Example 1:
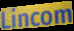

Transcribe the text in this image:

Lincom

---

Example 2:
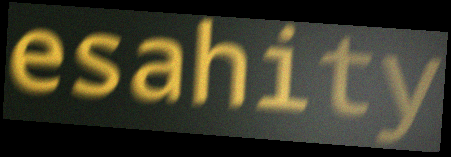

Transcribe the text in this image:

esahity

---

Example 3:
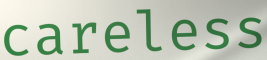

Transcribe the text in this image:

careless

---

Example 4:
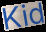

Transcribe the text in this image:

Kid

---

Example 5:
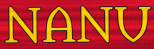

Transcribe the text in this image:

NANU